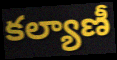
కల్యాణీ